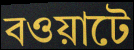
বওয়াটে